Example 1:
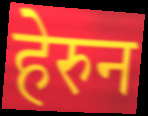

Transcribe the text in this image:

हेरुन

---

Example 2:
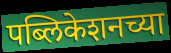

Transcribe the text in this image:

पब्लिकेशनच्या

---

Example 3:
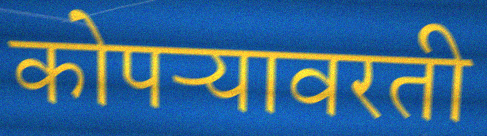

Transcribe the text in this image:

कोपऱ्यावरती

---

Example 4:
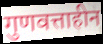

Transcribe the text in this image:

गुणवत्ताहीन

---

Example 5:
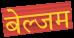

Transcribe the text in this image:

बेल्जम